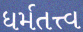
ધર્મતત્ત્વ